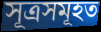
সূত্ৰসমূহত